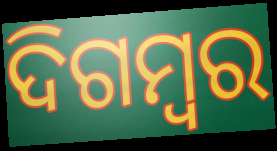
ଦିଗମ୍ୱର